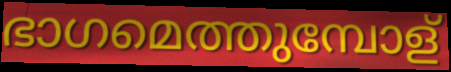
ഭാഗമെത്തുമ്പോള്